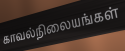
காவல்நிலையங்கள்